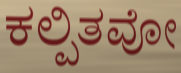
ಕಲ್ಪಿತವೋ